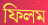
ফিলম